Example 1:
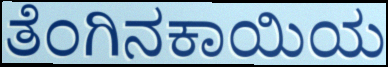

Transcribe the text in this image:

ತೆಂಗಿನಕಾಯಿಯ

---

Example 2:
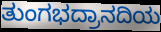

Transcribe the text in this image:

ತುಂಗಭದ್ರಾನದಿಯ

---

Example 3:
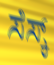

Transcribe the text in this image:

ಸೆಸ್ಕ್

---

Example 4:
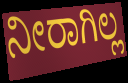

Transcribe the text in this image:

ನೀರಾಗಿಲ್ಲ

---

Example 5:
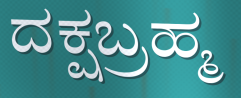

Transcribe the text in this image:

ದಕ್ಷಬ್ರಹ್ಮ